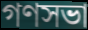
গণসভা